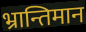
भ्रान्तिमान